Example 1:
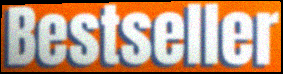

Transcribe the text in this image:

Bestseller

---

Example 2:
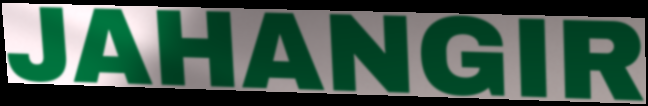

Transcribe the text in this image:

JAHANGIR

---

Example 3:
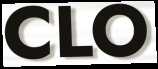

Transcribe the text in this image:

CLO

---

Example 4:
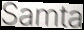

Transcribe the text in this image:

Samta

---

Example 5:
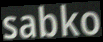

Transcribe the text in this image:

sabko